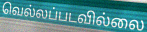
வெல்லப்படவில்லை